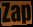
Zap